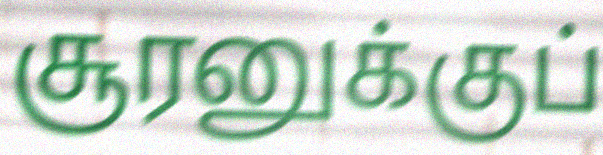
சூரனுக்குப்